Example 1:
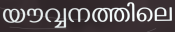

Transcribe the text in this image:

യൗവ്വനത്തിലെ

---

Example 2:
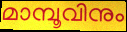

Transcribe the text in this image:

മാമ്പൂവിനും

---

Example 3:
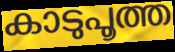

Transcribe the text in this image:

കാടുപൂത്ത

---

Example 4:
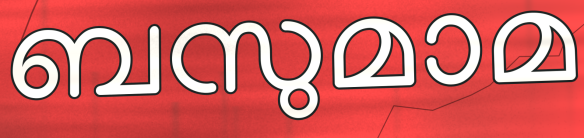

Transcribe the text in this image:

ബസുമാമ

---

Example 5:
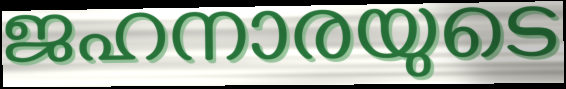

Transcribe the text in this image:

ജഹനാരയുടെ